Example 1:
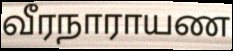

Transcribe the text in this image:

வீரநாராயண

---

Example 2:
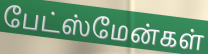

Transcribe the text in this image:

பேட்ஸ்மேன்கள்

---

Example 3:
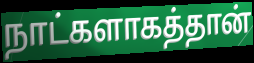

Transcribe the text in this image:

நாட்களாகத்தான்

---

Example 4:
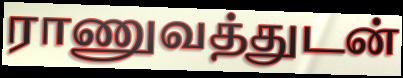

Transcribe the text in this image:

ராணுவத்துடன்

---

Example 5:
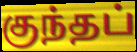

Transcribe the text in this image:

குந்தப்